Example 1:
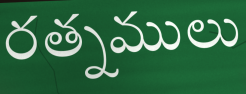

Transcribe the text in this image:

రత్నములు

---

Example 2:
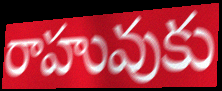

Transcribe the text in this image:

రాహువుకు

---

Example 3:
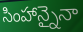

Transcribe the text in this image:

సింహాన్నైనా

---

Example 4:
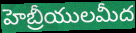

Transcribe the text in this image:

హెబ్రీయులమీద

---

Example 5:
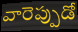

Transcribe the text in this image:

వారెప్పుడో